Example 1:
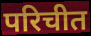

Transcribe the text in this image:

परिचीत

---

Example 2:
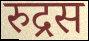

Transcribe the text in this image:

रुद्रस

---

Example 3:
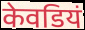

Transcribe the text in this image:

केवडियं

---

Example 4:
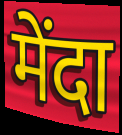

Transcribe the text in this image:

मेंदा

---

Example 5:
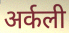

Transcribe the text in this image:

अर्कली